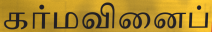
கர்மவினைப்